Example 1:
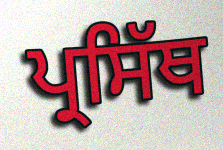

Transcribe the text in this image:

ਪ੍ਰਸਿੱਥ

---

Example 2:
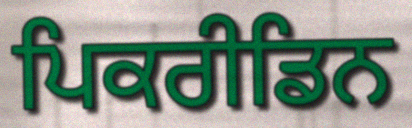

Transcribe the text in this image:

ਪਿਕਰੀਡਿਨ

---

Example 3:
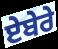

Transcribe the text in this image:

ਏਬੇਰੇ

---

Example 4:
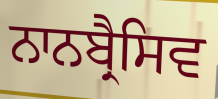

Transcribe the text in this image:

ਨਾਨਬ੍ਰੈਸਿਵ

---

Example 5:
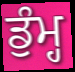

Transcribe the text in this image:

ਡੁੰਮ੍ਹ